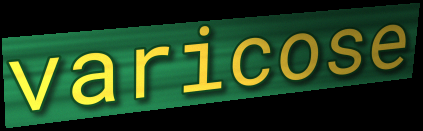
varicose